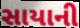
સાયાની